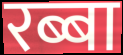
रब्बा